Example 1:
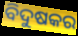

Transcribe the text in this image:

ବିଦୁଷକର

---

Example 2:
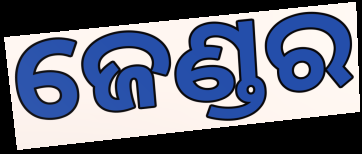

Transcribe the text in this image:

ଜେଣ୍ଡର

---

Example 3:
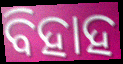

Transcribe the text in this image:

ବିହାହ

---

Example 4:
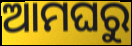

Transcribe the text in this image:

ଆମଘରୁ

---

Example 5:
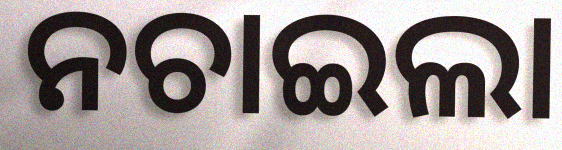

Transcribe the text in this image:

ନଚାଇଲା